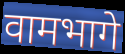
वामभागे